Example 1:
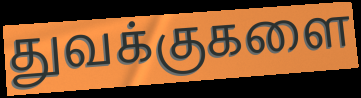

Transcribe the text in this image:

துவக்குகளை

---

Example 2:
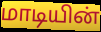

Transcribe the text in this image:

மாடியின்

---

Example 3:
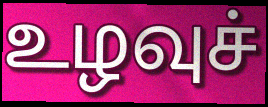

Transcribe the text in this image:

உழவுச்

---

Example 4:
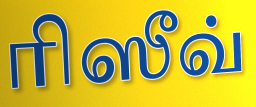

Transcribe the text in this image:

ரிஸீவ்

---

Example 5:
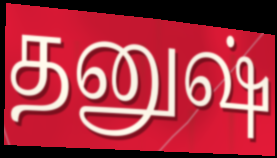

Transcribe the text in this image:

தனுஷ்